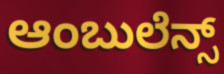
ಆಂಬುಲೆನ್ಸ್